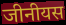
जीनीयस